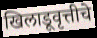
खिलाडूवृत्तीचे